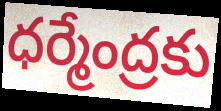
ధర్మేంద్రకు